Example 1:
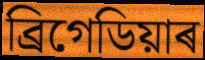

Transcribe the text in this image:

ব্ৰিগেডিয়াৰ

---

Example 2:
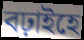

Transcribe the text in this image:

বঢ়াইহে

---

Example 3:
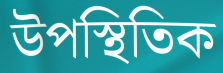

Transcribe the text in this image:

উপস্থিতিক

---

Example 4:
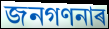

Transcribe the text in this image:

জনগণনাৰ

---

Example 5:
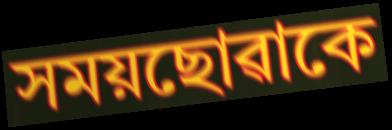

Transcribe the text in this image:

সময়ছোৱাকে